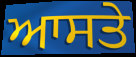
ਆਸਤੇ